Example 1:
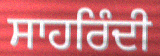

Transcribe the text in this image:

ਸਾਹਰਿੰਦੀ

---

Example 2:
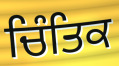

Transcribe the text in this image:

ਚਿੰਤਿਕ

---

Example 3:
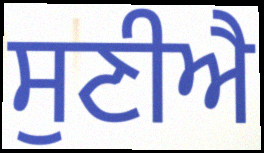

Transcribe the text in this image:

ਸੁਣੀਐ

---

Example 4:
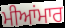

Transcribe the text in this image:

ਮੀਆਂਮਾਰ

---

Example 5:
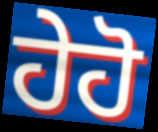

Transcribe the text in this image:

ਹੇਹੋ